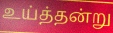
உய்த்தன்று